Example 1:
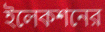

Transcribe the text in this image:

ইলেকশনের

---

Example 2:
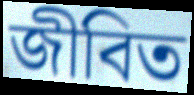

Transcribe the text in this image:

জীবিত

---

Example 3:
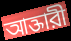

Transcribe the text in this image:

আক্তারী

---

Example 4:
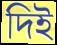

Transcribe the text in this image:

দিই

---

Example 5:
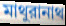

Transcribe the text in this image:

মাথুরানাথ